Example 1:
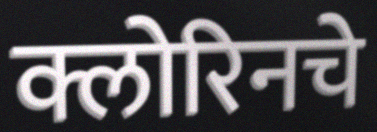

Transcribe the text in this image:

क्लोरिनचे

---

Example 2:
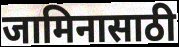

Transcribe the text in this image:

जामिनासाठी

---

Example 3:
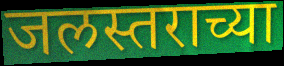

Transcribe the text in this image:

जलस्तराच्या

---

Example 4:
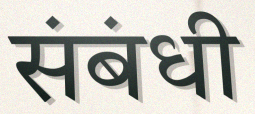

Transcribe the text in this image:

संबंधी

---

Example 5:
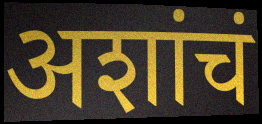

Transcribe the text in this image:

अशांचं